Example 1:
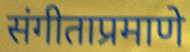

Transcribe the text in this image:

संगीताप्रमाणे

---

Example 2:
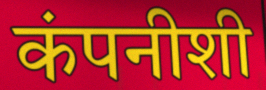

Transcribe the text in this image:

कंपनीशी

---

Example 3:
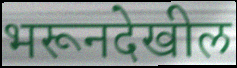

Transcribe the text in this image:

भरूनदेखील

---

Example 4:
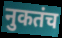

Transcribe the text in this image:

नुकतंच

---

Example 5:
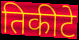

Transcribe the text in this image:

तिकीटे